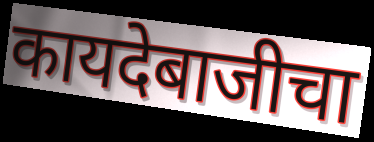
कायदेबाजीचा